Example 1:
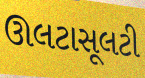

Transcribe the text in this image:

ઊલટાસૂલટી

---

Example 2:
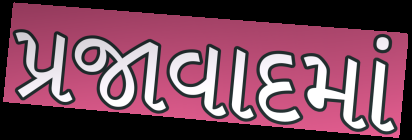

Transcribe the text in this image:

પ્રજાવાદમાં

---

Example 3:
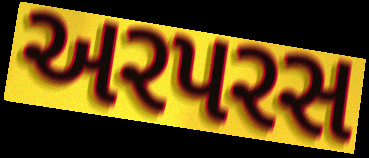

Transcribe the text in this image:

અરપરસ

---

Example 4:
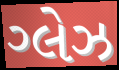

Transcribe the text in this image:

ગ્લેઝ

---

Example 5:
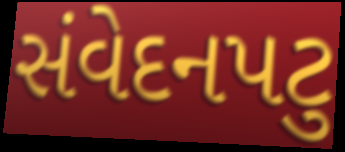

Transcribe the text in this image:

સંવેદનપટુ